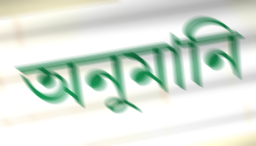
অনুমানি